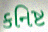
કનિષ્ટ